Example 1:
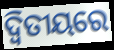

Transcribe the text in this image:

ଦ୍ୱିତୀୟରେ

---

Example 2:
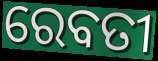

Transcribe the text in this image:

ରେବତୀ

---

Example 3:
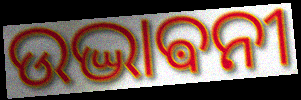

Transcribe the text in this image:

ଉଦ୍ଭାଵନୀ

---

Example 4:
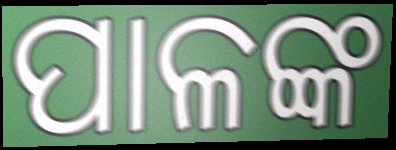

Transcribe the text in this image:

ପାଳଙ୍କ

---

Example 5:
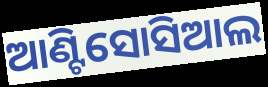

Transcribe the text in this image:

ଆଣ୍ଟିସୋସିଆଲ